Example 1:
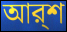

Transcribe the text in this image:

আর্‌শ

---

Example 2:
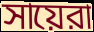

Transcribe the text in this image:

সায়েরা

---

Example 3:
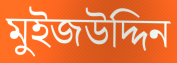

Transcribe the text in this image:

মুইজউদ্দিন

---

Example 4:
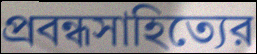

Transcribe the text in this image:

প্রবন্ধসাহিত্যের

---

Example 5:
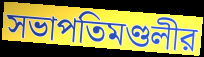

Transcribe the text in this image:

সভাপতিমণ্ডলীর